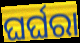
ଘର୍ଘରା